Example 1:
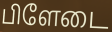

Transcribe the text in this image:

பிளேடை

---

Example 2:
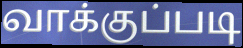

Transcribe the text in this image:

வாக்குப்படி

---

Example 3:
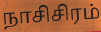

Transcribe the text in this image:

நாசிசிரம்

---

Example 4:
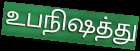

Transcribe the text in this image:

உபநிஷத்து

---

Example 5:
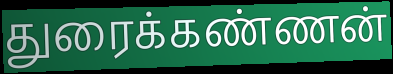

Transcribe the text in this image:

துரைக்கண்ணன்